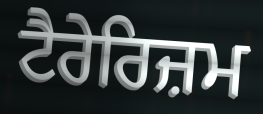
ਟੈਰੇਰਿਜ਼ਮ